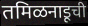
तमिळनाडूची